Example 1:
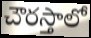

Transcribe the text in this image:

చౌరస్తాలో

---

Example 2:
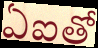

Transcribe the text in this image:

ఏఐతో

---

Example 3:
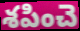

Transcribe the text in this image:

శపించె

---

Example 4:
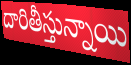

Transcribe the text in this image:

దారితీస్తున్నాయి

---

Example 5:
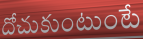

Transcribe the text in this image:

దోచుకుంటుంటే